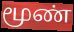
மூண்